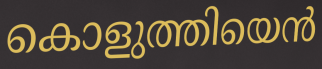
കൊളുത്തിയെൻ